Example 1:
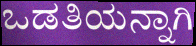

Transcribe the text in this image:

ಒಡತಿಯನ್ನಾಗಿ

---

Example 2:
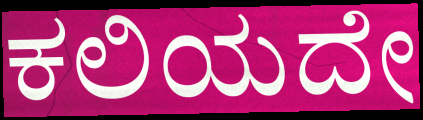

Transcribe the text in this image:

ಕಲಿಯದೇ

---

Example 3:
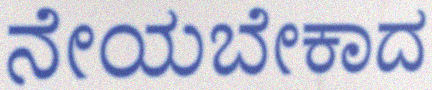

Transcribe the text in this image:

ನೇಯಬೇಕಾದ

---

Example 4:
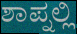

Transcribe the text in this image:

ಶಾಪ್ನಲ್ಲಿ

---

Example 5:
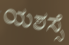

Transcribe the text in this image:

ಯಶಸ್ಸೆ